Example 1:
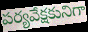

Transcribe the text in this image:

పర్యవేక్షకునిగా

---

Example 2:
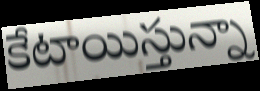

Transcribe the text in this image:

కేటాయిస్తున్నా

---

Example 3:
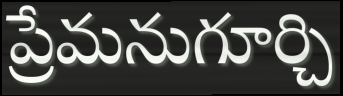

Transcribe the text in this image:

ప్రేమనుగూర్చి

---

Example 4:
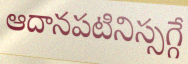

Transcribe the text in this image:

ఆదానపటినిస్సగ్గే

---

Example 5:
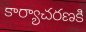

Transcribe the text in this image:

కార్యాచరణకి